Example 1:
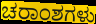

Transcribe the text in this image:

ಚರಾಂಶಗಳು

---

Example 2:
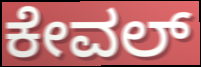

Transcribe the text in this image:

ಕೇವಲ್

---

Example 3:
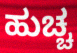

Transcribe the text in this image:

ಹುಚ್ಚ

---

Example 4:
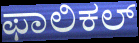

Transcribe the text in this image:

ಫಾಲಿಕಲ್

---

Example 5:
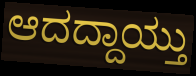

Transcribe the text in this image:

ಆದದ್ದಾಯ್ತು